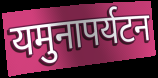
यमुनापर्यटन